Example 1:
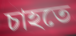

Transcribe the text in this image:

চাহতে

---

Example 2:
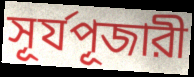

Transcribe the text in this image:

সূর্যপূজারী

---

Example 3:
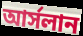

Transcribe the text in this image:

আর্সলান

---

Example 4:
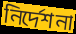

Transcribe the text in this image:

নির্দেশনা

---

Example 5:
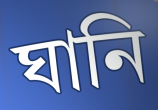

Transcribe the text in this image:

ঘানি